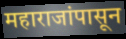
महाराजांपासून